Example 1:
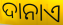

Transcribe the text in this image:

ଦାନାଏ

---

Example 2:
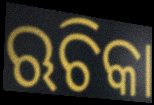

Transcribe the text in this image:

ଋଚିକା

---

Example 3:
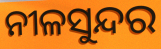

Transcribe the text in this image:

ନୀଳସୁନ୍ଦର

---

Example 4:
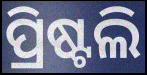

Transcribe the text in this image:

ପ୍ରିଷ୍ଟଲି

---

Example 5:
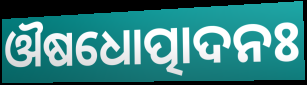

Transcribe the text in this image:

ଔଷଧୋତ୍ପାଦନଃ